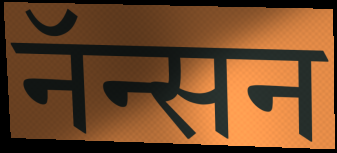
नॅन्सन